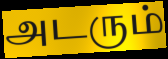
அடரும்